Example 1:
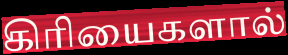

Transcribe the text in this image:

கிரியைகளால்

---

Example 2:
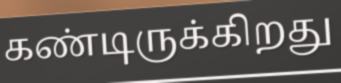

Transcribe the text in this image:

கண்டிருக்கிறது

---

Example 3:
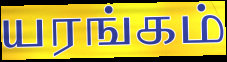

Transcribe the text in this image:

யரங்கம்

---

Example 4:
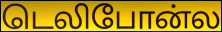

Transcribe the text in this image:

டெலிபோன்ல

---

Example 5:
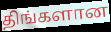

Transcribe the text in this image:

திங்களான